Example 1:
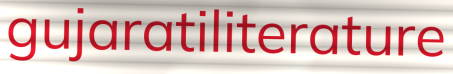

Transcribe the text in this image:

gujaratiliterature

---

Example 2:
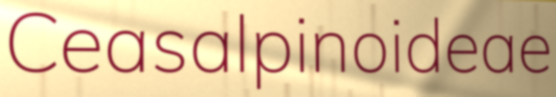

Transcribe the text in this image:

Ceasalpinoideae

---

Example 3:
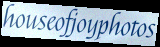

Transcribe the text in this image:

houseofjoyphotos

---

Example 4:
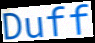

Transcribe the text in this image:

Duff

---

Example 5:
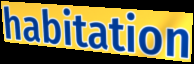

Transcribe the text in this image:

habitation